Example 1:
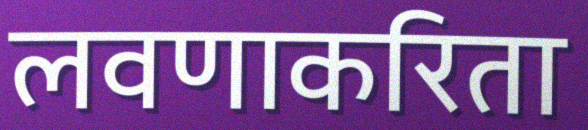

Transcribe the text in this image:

लवणाकरिता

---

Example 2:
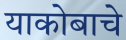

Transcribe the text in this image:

याकोबाचे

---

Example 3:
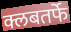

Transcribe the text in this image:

क्लबतर्फे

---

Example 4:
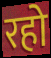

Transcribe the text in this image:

रहो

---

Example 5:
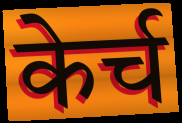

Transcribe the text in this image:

केर्च